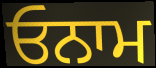
ਓਨਾਮ